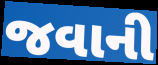
જવાની